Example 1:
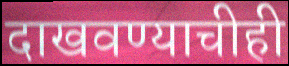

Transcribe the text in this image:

दाखवण्याचीही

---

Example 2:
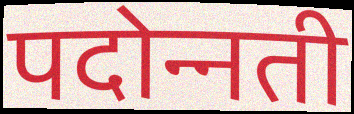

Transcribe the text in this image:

पदोन्‍नती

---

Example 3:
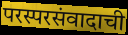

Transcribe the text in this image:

परस्परसंवादाची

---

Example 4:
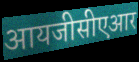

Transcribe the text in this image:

आयजीसीएआर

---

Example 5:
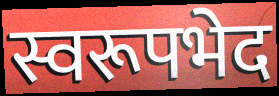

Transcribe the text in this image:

स्वरूपभेद